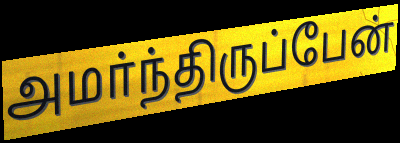
அமர்ந்திருப்பேன்